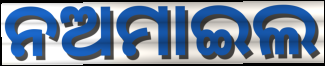
ନଅମାଇଲ